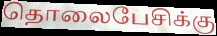
தொலைபேசிக்கு